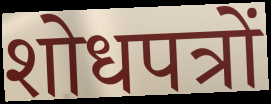
शोधपत्रों